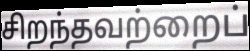
சிறந்தவற்றைப்